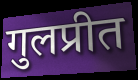
गुलप्रीत